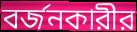
বর্জনকারীর